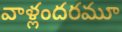
వాళ్లందరమూ